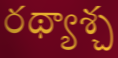
రథ్యాశ్చ